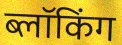
ब्लॉकिंग